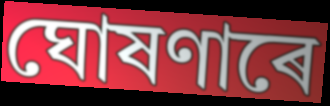
ঘোষণাৰে